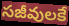
సజీవులకే